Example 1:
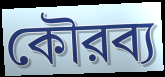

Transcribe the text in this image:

কৌরব্য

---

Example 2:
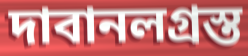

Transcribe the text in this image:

দাবানলগ্রস্ত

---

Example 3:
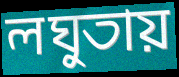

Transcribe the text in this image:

লঘুতায়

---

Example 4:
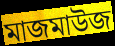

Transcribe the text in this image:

মাজমাউজ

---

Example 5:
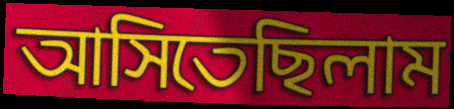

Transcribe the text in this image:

আসিতেছিলাম